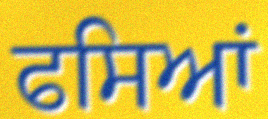
ਫਸਿਆਂ